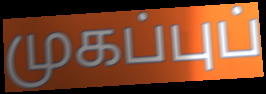
முகப்புப்